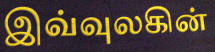
இவ்வுலகின்